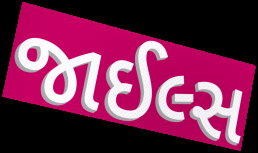
જાઈલ્સ